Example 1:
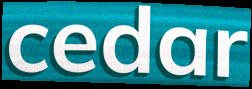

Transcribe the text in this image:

cedar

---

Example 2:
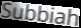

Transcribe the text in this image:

Subbiah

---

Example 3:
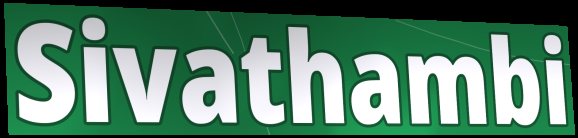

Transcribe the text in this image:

Sivathambi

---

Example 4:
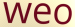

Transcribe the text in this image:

weo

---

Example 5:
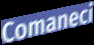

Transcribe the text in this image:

Comaneci